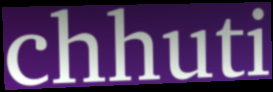
chhuti